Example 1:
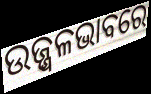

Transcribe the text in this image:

ଉଜ୍ଜ୍ୱଳଭାବରେ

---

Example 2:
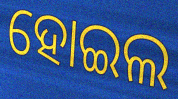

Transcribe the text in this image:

ହୋଇଲ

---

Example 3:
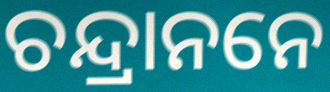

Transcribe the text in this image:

ଚନ୍ଦ୍ରାନନେ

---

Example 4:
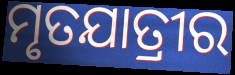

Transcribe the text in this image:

ମୃତଯାତ୍ରୀର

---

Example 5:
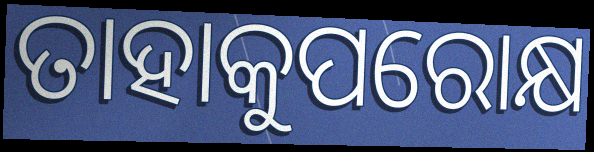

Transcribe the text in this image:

ତାହାକୁପରୋକ୍ଷ